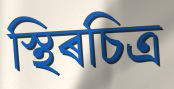
স্থিৰচিত্ৰ